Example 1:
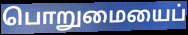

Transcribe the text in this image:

பொறுமையைப்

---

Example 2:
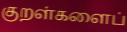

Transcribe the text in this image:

குறள்களைப்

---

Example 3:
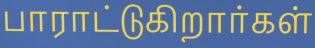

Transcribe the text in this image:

பாராட்டுகிறார்கள்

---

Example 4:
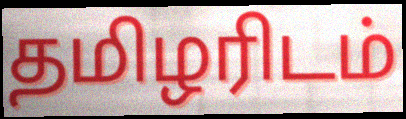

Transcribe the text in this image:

தமிழரிடம்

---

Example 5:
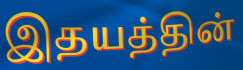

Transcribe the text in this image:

இதயத்தின்